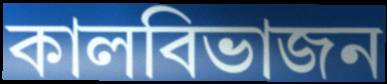
কালবিভাজন